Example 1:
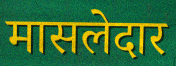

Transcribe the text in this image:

मासलेदार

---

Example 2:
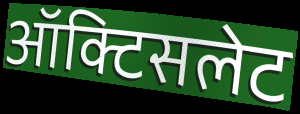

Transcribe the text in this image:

ऑक्टिसलेट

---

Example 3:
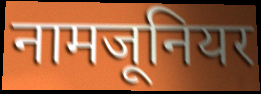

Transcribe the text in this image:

नामजूनियर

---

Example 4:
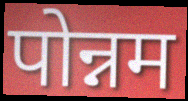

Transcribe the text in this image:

पोन्नम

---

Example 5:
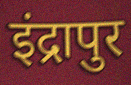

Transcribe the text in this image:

इंद्रापुर